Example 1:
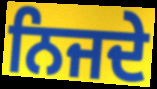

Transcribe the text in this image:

ਨਿਜਦੇ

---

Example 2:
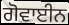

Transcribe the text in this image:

ਗੋਵਾਈਨ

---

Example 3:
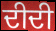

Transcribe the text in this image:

ਦੀਦੀ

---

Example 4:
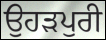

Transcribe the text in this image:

ਉਹੜਪੁਰੀ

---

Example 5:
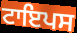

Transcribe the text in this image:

ਟਾਇਪਸ